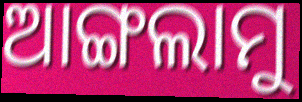
ଆଙ୍ଗଲାମୁ